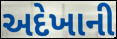
અદેખાની